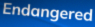
Endangered